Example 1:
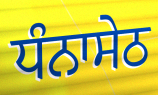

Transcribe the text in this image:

ਧੰਨਾਸੇਠ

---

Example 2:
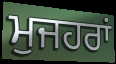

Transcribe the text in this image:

ਮੁਜਹਰਾਂ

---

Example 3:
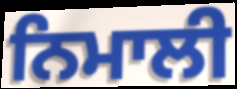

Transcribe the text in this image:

ਨਿਮਾਲੀ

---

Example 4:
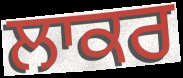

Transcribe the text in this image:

ਲਾਕਰ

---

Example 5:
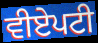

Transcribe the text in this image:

ਵੀਏਪਟੀ